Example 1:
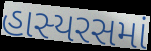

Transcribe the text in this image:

હાસ્યરસમાં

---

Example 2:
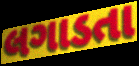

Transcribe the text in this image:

લગાડતા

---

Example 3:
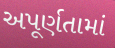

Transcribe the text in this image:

અપૂર્ણતામાં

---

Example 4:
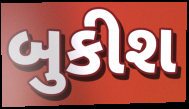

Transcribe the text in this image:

બુકીશ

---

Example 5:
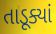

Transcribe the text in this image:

તાડૂક્યાં